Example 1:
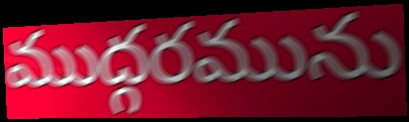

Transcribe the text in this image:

ముద్గరమును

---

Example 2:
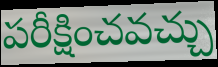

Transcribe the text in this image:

పరీక్షించవచ్చు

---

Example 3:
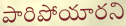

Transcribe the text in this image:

పారిపోయారని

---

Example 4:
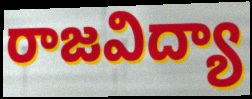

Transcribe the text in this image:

రాజవిద్యా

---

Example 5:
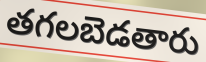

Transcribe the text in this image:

తగలబెడతారు